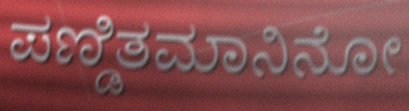
ಪಣ್ಡಿತಮಾನಿನೋ